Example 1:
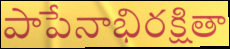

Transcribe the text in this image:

పాపేనాభిరక్షితా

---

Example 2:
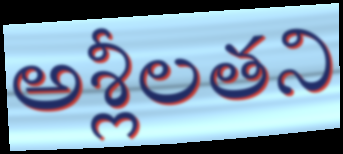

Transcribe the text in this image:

అశ్లీలతని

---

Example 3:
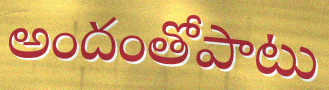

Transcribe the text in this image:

అందంతోపాటు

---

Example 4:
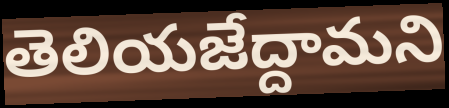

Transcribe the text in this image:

తెలియజేద్దామని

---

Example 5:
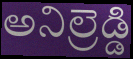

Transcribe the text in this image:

అనిల్రెడ్డి